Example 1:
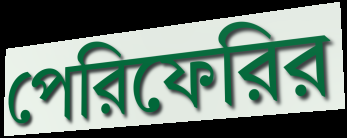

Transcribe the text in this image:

পেরিফেরির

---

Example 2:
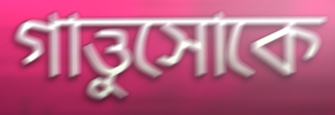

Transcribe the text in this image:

গাত্তুসোকে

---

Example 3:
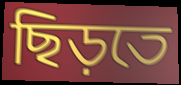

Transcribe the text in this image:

ছিড়তে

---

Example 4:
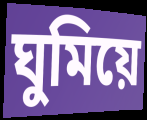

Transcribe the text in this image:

ঘুমিয়ে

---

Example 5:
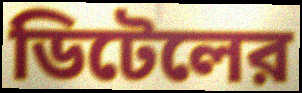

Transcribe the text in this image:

ডিটেলের